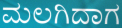
ಮಲಗಿದಾಗ